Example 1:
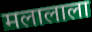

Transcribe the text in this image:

मलालाला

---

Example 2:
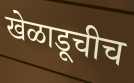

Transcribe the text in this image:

खेळाडूचीच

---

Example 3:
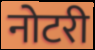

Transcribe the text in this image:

नोटरी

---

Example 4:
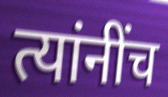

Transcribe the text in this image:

त्यांनींच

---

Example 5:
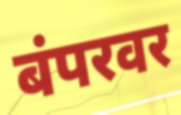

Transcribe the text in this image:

बंपरवर